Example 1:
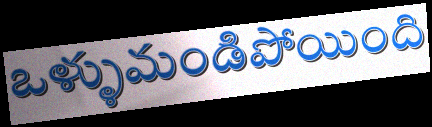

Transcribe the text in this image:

ఒళ్ళుమండిపోయింది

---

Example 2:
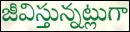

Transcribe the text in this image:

జీవిస్తున్నట్లుగా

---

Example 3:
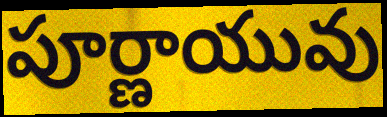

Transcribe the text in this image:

పూర్ణాయువు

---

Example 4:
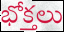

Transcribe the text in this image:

భోక్తలు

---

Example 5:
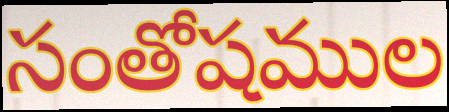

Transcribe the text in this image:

సంతోషముల